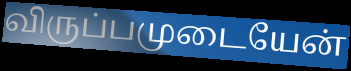
விருப்பமுடையேன்